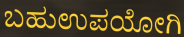
ಬಹುಉಪಯೋಗಿ